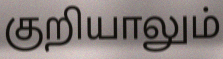
குறியாலும்